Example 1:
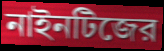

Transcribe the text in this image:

নাইনটিজের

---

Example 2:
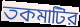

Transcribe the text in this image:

তকমাটির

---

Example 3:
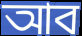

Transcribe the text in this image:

আব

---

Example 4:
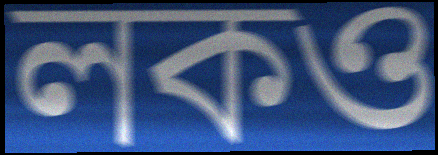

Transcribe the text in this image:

লকও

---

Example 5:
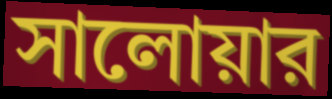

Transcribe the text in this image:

সালোয়ার